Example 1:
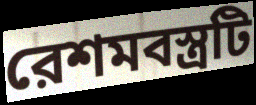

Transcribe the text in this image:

রেশমবস্ত্রটি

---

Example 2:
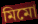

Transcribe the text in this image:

মিমো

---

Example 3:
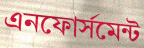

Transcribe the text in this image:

এনফোর্সমেন্ট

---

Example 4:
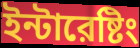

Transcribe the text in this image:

ইন্টারেষ্টিং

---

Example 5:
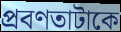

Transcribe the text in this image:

প্রবণতাটাকে